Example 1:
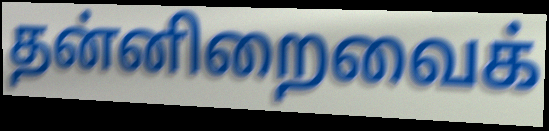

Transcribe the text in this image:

தன்னிறைவைக்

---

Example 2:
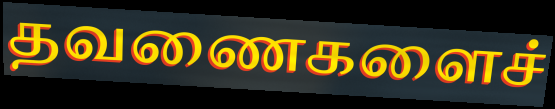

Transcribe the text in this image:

தவணைகளைச்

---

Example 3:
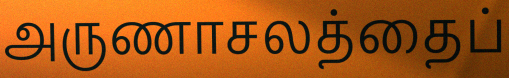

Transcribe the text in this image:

அருணாசலத்தைப்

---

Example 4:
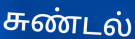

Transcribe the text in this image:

சுண்டல்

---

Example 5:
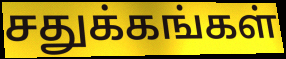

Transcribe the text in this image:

சதுக்கங்கள்